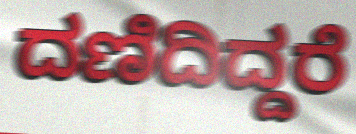
ದಣಿದಿದ್ದರೆ